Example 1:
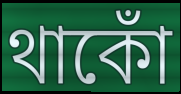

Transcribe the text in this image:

থাকোঁ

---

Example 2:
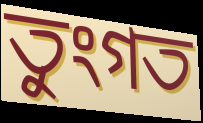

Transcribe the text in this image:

তুংগত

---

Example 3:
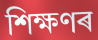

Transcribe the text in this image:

শিক্ষণৰ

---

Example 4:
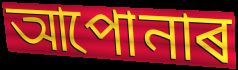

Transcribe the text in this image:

আপোনাৰ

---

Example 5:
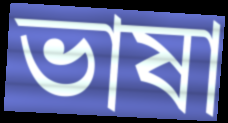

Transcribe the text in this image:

ভাষা